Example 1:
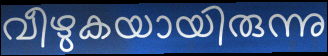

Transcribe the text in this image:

വീഴുകയായിരുന്നു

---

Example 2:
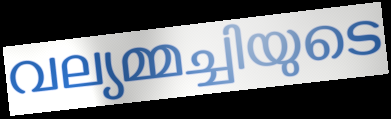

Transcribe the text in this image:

വല്യമ്മച്ചിയുടെ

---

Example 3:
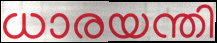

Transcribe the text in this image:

ധാരയന്തി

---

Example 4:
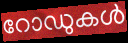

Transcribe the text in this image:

റോഡുകൾ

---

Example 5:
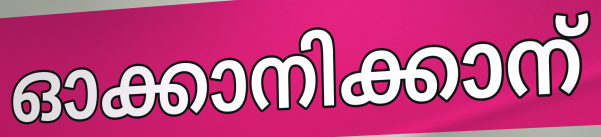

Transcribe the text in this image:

ഓക്കാനിക്കാന്